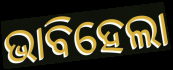
ଭାବିହେଲା